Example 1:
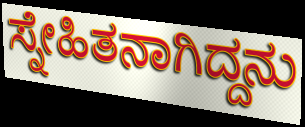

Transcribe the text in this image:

ಸ್ನೇಹಿತನಾಗಿದ್ದನು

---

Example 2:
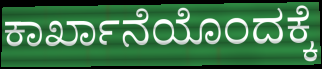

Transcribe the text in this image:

ಕಾರ್ಖಾನೆಯೊಂದಕ್ಕೆ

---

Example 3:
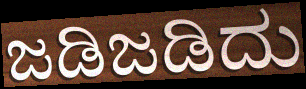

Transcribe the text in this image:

ಜಡಿಜಡಿದು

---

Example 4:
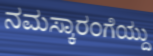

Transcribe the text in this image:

ನಮಸ್ಕಾರಂಗೆಯ್ದು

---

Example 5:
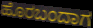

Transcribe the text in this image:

ಹೊರಬಂದಾಗ